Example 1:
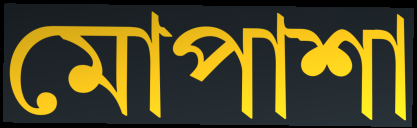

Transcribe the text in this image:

মোপাশা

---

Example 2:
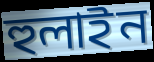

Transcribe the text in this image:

হুলাইন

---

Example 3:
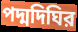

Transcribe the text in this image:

পদ্মদিঘির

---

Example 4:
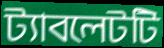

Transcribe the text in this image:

ট্যাবলেটটি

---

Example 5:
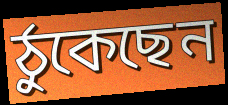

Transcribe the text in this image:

ঠুকেছেন